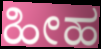
ಹೀಹ